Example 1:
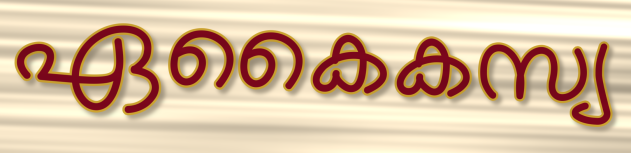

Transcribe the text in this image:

ഏകൈകസ്യ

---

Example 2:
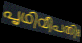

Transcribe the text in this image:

പൃഥിവീപതിഃ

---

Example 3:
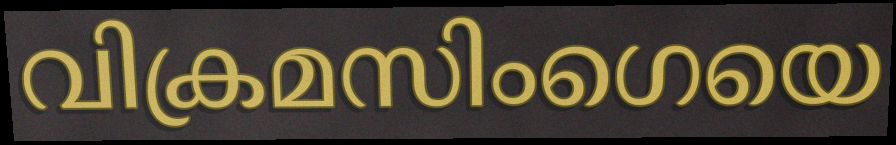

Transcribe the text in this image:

വിക്രമസിംഗെയെ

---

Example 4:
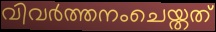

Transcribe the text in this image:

വിവർത്തനംചെയ്തത്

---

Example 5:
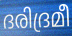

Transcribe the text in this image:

ദരിദ്രമീ